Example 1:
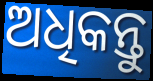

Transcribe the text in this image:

ଅଧିକନ୍ତୁ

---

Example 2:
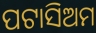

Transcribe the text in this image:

ପଟାସିଅମ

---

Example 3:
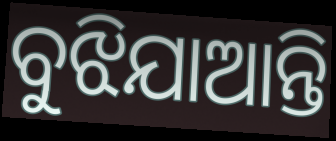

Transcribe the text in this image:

ବୁଝିଯାଆନ୍ତି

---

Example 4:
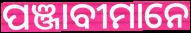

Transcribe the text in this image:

ପଞ୍ଜାବୀମାନେ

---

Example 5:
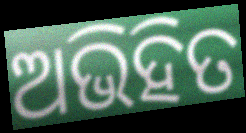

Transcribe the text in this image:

ଅଭିହିତ